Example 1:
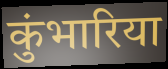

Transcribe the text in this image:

कुंभारिया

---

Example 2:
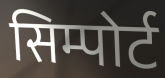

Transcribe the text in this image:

सिम्पोर्ट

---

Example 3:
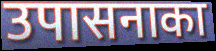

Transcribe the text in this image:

उपासनाका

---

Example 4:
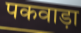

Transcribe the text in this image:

पकवाड़ा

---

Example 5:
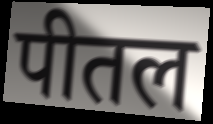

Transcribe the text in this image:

पीतल